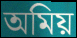
অমিয়